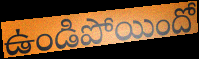
ఉండిపోయిందో